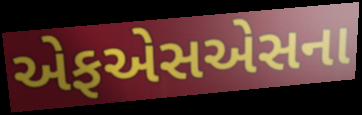
એફએસએસના